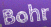
Bohr